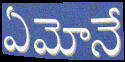
ఏమోనే